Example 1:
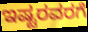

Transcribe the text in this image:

ಇಷ್ಟರವರಗೆ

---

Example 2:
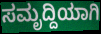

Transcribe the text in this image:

ಸಮೃದ್ದಿಯಾಗಿ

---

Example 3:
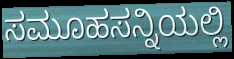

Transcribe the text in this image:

ಸಮೂಹಸನ್ನಿಯಲ್ಲಿ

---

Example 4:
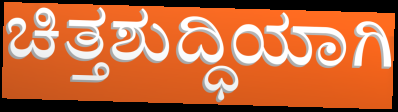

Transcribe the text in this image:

ಚಿತ್ತಶುದ್ಧಿಯಾಗಿ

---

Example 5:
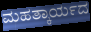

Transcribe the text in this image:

ಮಹತ್ಕಾರ್ಯದ